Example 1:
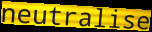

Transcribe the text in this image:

neutralise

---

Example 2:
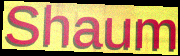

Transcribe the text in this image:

Shaum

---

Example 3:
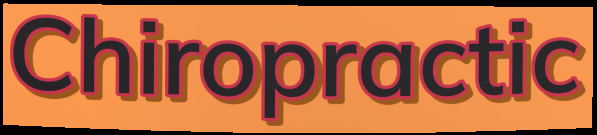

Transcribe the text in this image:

Chiropractic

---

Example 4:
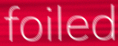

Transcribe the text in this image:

foiled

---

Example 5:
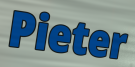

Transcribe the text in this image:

Pieter